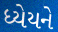
ધ્યેયને